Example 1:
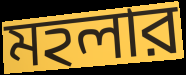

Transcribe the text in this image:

মহলার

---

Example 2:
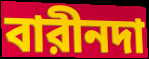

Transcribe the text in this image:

বারীনদা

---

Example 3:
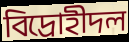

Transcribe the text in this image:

বিদ্রোহীদল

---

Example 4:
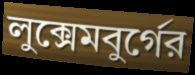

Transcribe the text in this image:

লুক্সেমবুর্গের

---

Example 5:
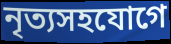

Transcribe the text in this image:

নৃত্যসহযোগে